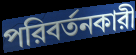
পরিবর্তনকারী